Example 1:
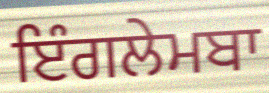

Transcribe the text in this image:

ਇੰਗਲੇਮਬਾ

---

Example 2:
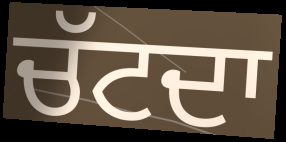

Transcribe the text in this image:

ਚੱਟਦਾ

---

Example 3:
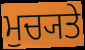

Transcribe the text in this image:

ਮੁਚ੍ਯਤੇ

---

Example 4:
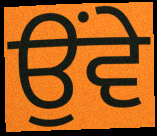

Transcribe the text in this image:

ਉੰਵੇ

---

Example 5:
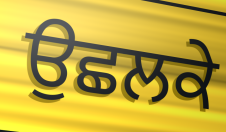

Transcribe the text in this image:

ਉਛਲਕੇ